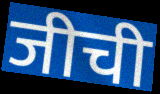
जीची